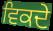
ਵਿਕਦੇ